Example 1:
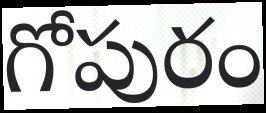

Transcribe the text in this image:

గోపురం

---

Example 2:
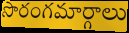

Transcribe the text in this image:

సొరంగమార్గాలు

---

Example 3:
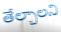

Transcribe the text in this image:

తేల్చాలని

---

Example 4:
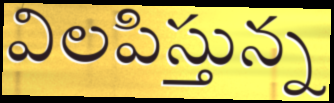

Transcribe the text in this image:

విలపిస్తున్న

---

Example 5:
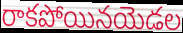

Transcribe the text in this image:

రాకపోయినయెడల